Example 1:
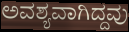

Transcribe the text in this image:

ಅವಶ್ಯವಾಗಿದ್ದವು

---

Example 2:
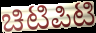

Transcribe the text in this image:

ಚಿಟಿಪಿಟಿ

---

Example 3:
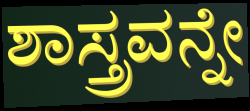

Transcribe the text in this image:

ಶಾಸ್ತ್ರವನ್ನೇ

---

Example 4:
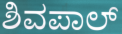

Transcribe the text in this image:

ಶಿವಪಾಲ್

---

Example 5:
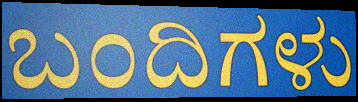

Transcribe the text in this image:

ಬಂದಿಗಳು